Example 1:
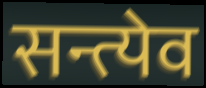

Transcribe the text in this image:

सन्त्येव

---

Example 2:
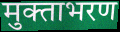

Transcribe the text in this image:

मुक्ताभरण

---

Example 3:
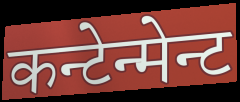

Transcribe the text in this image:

कन्टेन्मेन्ट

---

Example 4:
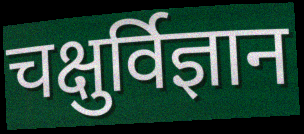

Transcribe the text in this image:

चक्षुर्विज्ञान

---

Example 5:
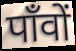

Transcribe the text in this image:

पाँवों